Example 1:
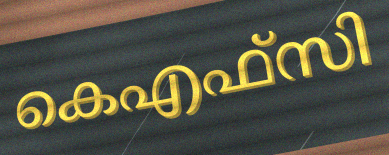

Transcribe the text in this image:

കെഎഫ്സി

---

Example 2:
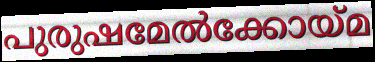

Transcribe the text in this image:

പുരുഷമേൽക്കോയ്മ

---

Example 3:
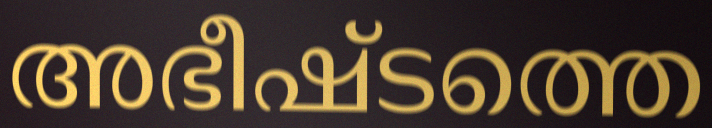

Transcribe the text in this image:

അഭീഷ്ടത്തെ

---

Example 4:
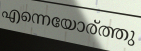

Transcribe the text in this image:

എന്നെയോര്ത്തു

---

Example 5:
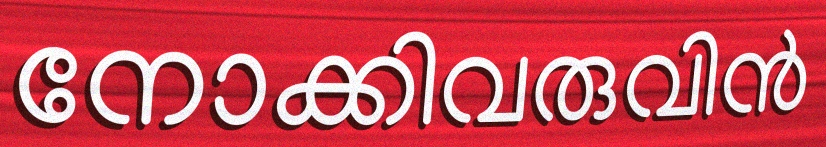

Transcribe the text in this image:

നോക്കിവരുവിൻ